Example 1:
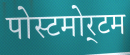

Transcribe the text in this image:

पोस्टमोर्टम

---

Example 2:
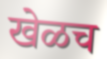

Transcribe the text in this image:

खेळच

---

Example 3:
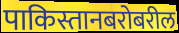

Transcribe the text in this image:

पाकिस्तानबरोबरील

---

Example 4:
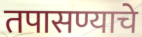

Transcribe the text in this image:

तपासण्याचे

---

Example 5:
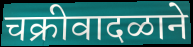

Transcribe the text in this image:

चक्रीवादळाने